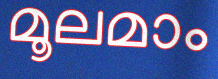
മൂലമാം